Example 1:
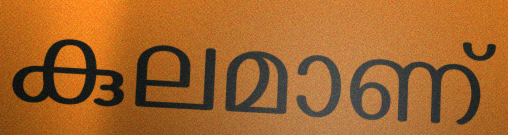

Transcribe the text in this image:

കുലമാണ്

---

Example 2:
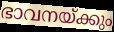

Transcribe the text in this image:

ഭാവനയ്ക്കും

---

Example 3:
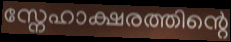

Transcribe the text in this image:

സ്നേഹാക്ഷരത്തിന്റെ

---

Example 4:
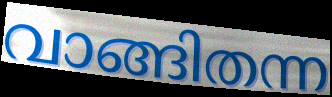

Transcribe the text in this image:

വാങ്ങിതന്ന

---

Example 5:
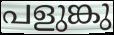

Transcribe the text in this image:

പളുങ്കു